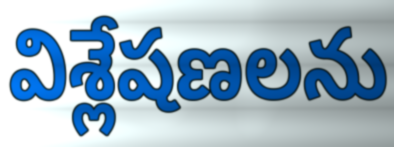
విశ్లేషణలను